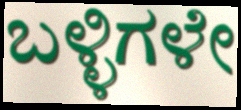
ಬಳ್ಳಿಗಳೇ